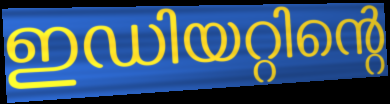
ഇഡിയറ്റിന്റെ